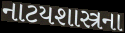
નાટયશાસ્ત્રના